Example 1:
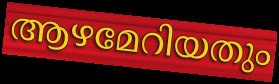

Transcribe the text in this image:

ആഴമേറിയതും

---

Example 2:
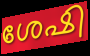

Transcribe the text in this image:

ശേഷി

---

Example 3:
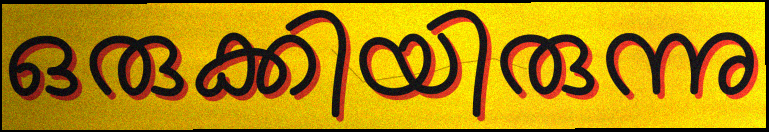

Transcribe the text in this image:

ഒരുക്കിയിരുന്നു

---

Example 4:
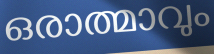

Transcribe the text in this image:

ഒരാത്മാവും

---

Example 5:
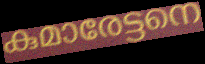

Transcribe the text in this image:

കുമാരേട്ടനെ